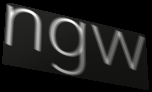
ngw